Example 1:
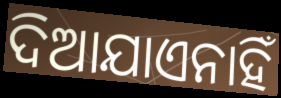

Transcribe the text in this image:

ଦିଆଯାଏନାହିଁ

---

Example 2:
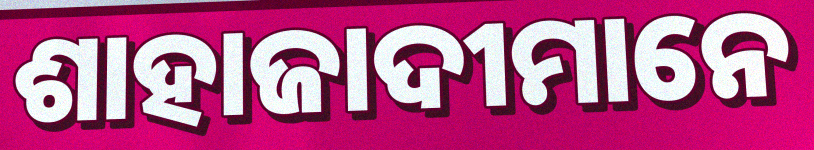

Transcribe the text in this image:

ଶାହାଜାଦୀମାନେ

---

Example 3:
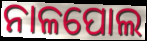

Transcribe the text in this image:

ନାଳପୋଲ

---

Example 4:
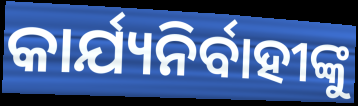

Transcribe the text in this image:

କାର୍ଯ୍ୟନିର୍ବାହୀଙ୍କୁ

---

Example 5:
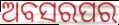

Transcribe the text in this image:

ଅବସରପର